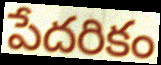
పేదరికం